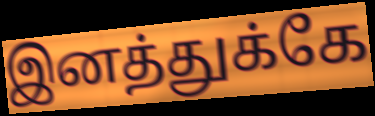
இனத்துக்கே